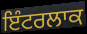
ਇੰਟਰਲਾਕ